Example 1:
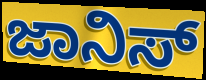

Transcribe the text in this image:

ಜಾನಿಸ್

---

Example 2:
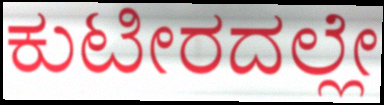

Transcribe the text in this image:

ಕುಟೀರದಲ್ಲೇ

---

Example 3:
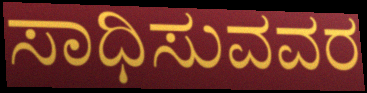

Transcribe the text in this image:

ಸಾಧಿಸುವವರ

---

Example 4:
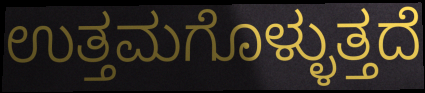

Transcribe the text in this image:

ಉತ್ತಮಗೊಳ್ಳುತ್ತದೆ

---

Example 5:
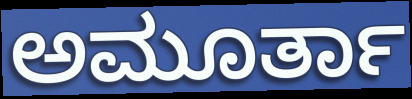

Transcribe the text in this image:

ಅಮೂರ್ತಾ